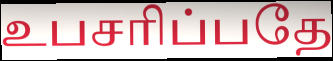
உபசரிப்பதே